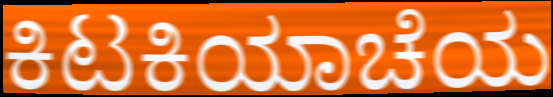
ಕಿಟಕಿಯಾಚೆಯ